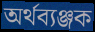
অৰ্থব্যঞ্জক